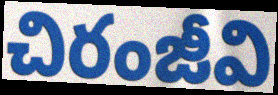
చిరంజీవి